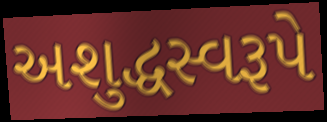
અશુદ્ધસ્વરૂપે